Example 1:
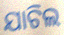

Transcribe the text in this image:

ଯାଚିଲ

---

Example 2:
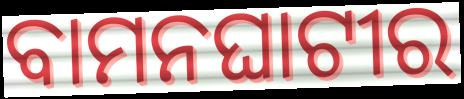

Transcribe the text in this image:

ବାମନଘାଟୀର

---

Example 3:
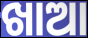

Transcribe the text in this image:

ଖାଆ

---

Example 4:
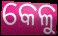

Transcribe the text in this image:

କେଳୁ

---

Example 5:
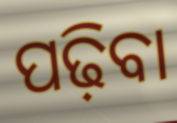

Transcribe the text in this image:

ପଢ଼ିବା